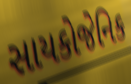
સાયકોજેનિક